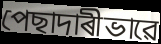
পেছাদাৰীভাৱে